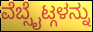
ವೆಬ್ಸೈಟ್ಗಳನ್ನು